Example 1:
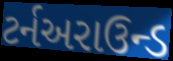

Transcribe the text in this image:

ટર્નઅરાઉન્ડ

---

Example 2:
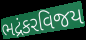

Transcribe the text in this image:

ભદ્રંકરવિજય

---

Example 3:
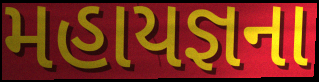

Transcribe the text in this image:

મહાયજ્ઞના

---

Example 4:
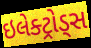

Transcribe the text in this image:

ઇલેક્ટ્રોડ્સ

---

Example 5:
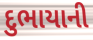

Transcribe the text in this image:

દુભાયાની